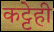
कट्टेही